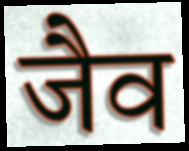
जैव